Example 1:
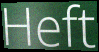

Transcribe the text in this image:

Heft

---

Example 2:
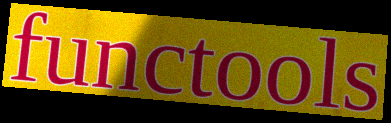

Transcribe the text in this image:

functools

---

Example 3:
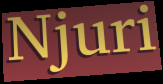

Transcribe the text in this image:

Njuri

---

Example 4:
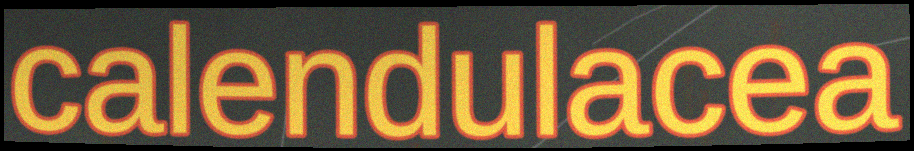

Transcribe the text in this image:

calendulacea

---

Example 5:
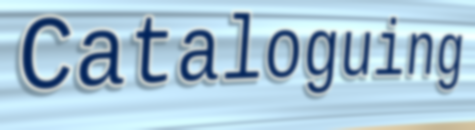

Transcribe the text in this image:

Cataloguing